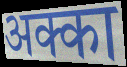
अक्का